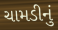
ચામડીનું